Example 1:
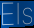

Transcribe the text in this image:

Els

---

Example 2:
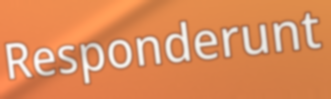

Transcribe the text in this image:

Responderunt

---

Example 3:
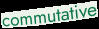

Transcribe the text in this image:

commutative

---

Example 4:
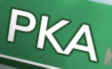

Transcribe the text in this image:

PKA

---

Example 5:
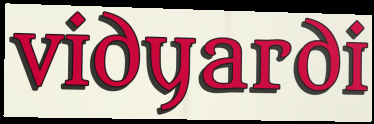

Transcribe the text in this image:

vidyardi